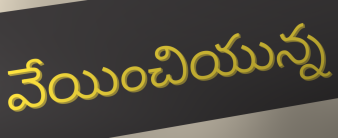
వేయించియున్న